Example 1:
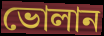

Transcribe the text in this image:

ভোলান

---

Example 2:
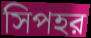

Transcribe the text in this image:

সিপহর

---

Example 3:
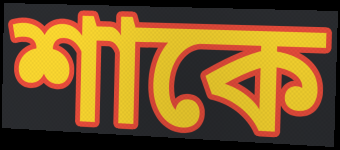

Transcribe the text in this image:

শাকে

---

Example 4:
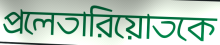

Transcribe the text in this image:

প্রলেতারিয়োতকে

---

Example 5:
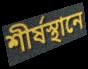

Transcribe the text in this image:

শীর্ষস্থানে